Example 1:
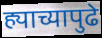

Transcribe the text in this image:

ह्याच्यापुढे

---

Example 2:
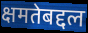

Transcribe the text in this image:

क्षमतेबद्दल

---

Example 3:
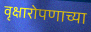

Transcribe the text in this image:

वृक्षारोपणाच्या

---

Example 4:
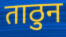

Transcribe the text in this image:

ताठुन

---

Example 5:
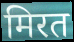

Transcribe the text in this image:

मिरत